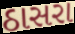
ઠાસરા